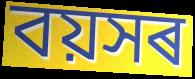
বয়সৰ